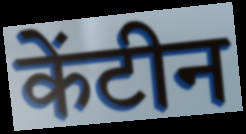
केंटीन